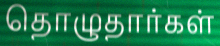
தொழுதார்கள்